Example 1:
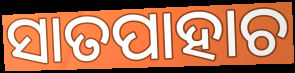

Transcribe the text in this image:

ସାତପାହାଚ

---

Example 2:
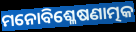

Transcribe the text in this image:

ମନୋବିଶ୍ଳେଷଣାତ୍ମକ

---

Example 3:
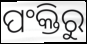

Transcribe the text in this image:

ପଂକ୍ତିରୁ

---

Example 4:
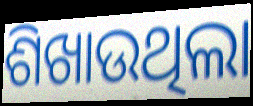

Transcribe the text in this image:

ଶିଖାଉଥିଲା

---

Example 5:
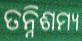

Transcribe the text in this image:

ତନ୍ନିଶମ୍ୟ